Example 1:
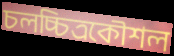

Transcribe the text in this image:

চলচ্চিত্রকৌশল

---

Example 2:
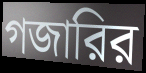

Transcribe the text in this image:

গজারির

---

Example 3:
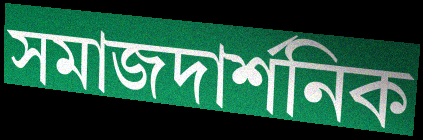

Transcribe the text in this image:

সমাজদার্শনিক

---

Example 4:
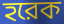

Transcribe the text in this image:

হরেক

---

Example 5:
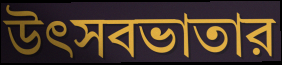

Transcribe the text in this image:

উৎসবভাতার